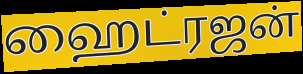
ஹைட்ரஜன்